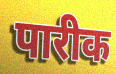
पारीक